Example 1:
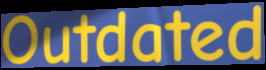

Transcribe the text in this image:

Outdated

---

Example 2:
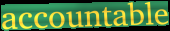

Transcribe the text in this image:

accountable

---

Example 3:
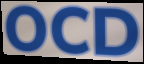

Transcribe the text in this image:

OCD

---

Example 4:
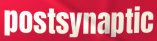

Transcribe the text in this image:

postsynaptic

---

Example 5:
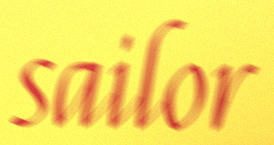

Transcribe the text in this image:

sailor